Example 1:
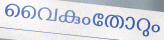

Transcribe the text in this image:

വൈകുംതോറും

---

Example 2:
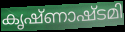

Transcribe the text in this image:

കൃഷ്ണാഷ്ടമി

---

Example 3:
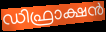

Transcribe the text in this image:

ഡിഫ്രാക്ഷൻ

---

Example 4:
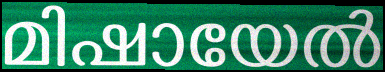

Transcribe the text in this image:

മിഷായേൽ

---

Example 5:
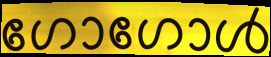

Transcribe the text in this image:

ഗോഗോൾ